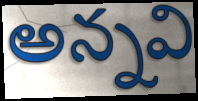
అన్నవి